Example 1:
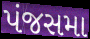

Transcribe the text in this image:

પંજસમા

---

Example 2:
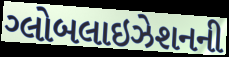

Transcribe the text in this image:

ગ્લોબલાઇઝેશનની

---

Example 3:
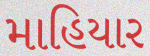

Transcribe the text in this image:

માહિયાર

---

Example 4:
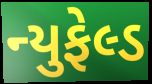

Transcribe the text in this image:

ન્યુફેલ્ડ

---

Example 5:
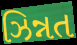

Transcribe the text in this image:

ઝિન્નત